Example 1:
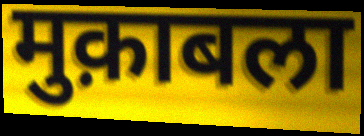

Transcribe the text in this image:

मुक़ाबला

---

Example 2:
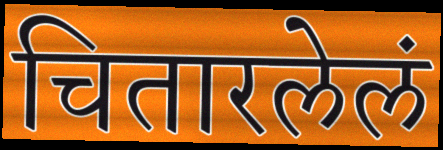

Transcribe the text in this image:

चितारलेलं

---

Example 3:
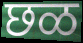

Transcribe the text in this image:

छळ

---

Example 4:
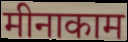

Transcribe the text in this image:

मीनाकाम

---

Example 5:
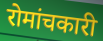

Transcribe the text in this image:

रोमांचकारी